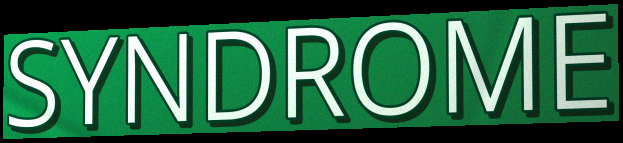
SYNDROME